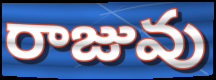
రాజువు